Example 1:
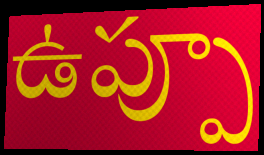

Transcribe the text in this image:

ఉప్పూ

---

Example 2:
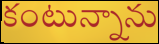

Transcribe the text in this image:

కంటున్నాను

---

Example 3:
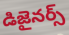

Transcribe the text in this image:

డిజైనర్స్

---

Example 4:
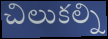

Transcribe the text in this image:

చిలుకల్ని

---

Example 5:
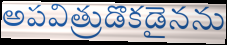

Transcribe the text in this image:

అపవిత్రుడొకడైనను